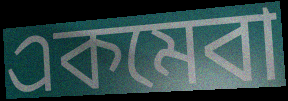
একমেবা